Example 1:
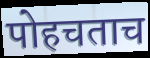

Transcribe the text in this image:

पोहचताच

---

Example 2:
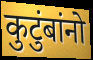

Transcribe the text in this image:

कुटुंबांनो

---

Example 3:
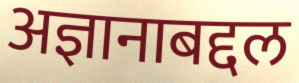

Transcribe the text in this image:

अज्ञानाबद्दल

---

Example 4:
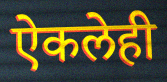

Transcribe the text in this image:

ऐकलेही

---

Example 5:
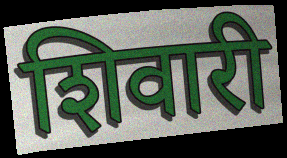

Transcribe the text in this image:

शिवारी